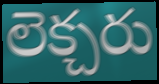
లెక్చరు